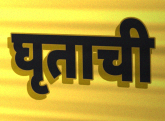
घृताची